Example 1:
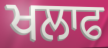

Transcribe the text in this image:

ਖਲਾਫ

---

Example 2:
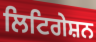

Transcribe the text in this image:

ਲਿਟਿਗੇਸ਼ਨ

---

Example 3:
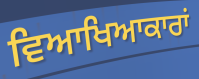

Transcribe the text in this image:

ਵਿਆਖਿਆਕਾਰਾਂ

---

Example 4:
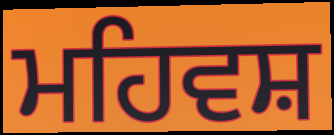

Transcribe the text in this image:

ਮਹਿਵਸ਼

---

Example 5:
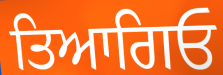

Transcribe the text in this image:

ਤਿਆਗਿਓ